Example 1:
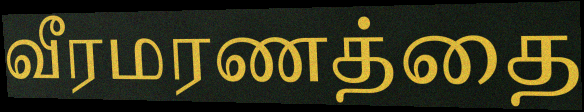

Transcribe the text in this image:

வீரமரணத்தை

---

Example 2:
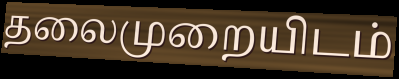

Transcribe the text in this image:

தலைமுறையிடம்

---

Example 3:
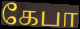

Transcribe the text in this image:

கேபா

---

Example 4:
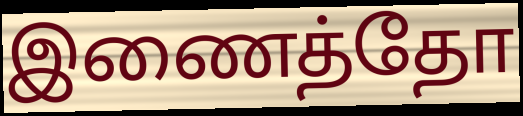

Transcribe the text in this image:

இணைத்தோ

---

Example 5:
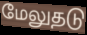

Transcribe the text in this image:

மேலுதடு